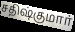
சதிஷ்குமார்